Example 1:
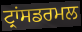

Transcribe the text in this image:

ਟ੍ਰਾਂਸਡਰਮਲ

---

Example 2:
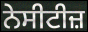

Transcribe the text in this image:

ਨੇਸੀਟੀਜ਼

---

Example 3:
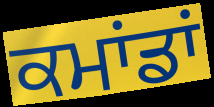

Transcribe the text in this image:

ਕਮਾਂਡਾਂ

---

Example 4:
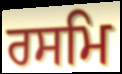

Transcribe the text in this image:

ਰਸਮਿ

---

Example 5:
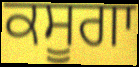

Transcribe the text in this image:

ਕਸੂਗਾ